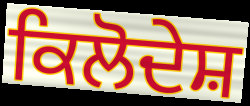
ਕਿਲੋਦੇਸ਼